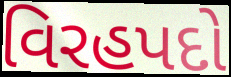
વિરહપદો